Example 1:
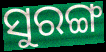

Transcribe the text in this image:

ସୁରଙ୍ଗ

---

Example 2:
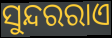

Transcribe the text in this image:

ସୁନ୍ଦରରାଏ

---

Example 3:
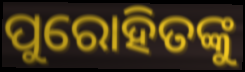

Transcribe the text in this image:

ପୁରୋହିତଙ୍କୁ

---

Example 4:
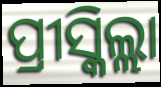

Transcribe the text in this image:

ପ୍ରୀସ୍କିଲ୍ଲା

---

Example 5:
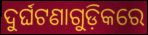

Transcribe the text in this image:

ଦୁର୍ଘଟଣାଗୁଡ଼ିକରେ